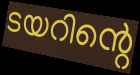
ടയറിന്റെ